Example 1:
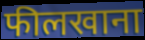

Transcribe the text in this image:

फीलखाना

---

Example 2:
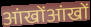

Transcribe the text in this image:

आंखोंआंखों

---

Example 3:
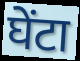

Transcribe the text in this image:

घेंटा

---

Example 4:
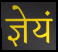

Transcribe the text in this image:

ज्ञेयं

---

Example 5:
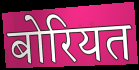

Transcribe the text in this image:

बोरियत